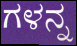
ಗಳನ್ನ